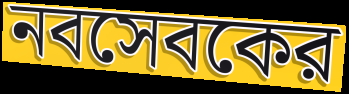
নবসেবকের